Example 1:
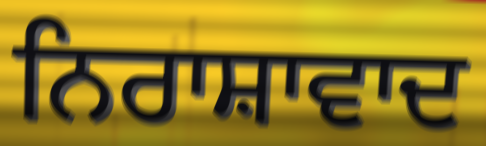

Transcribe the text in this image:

ਨਿਰਾਸ਼ਾਵਾਦ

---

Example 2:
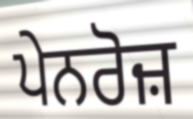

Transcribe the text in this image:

ਪੇਨਰੋਜ਼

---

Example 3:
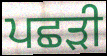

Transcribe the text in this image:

ਪਛੜੀ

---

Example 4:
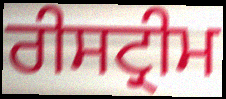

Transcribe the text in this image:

ਰੀਸਟ੍ਰੀਮ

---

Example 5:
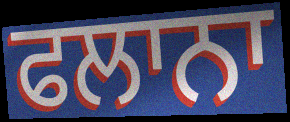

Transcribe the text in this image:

ਫਲਾਨਾ